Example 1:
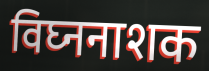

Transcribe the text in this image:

विघ्ननाशक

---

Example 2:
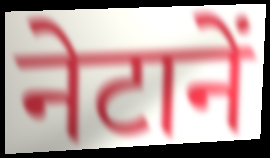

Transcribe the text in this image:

नेटानें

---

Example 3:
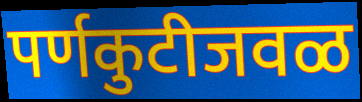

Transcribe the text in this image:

पर्णकुटीजवळ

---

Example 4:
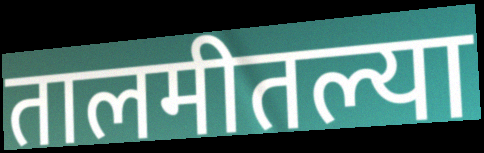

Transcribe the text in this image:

तालमीतल्या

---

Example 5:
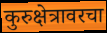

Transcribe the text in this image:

कुरुक्षेत्रावरचा